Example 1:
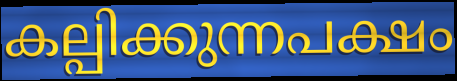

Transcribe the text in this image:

കല്പിക്കുന്നപക്ഷം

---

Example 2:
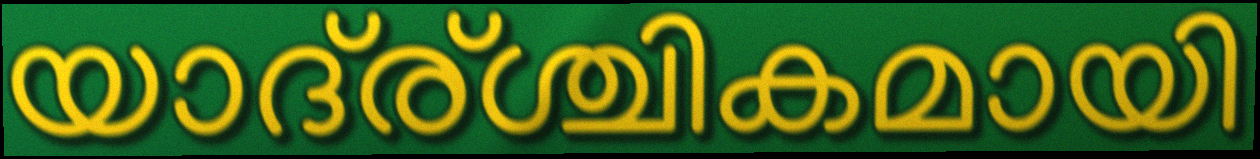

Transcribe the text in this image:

യാദ്ര്ശ്ചികമായി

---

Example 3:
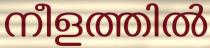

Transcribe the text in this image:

നീളത്തിൽ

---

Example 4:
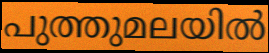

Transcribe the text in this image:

പുത്തുമലയിൽ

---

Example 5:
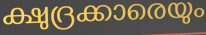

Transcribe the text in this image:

ക്ഷുദ്രക്കാരെയും